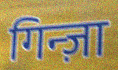
गिन्ज़ा